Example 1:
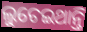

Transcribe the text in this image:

ଲୁଚେଇଥାନ୍ତି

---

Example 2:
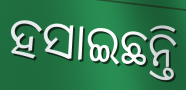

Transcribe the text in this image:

ହସାଇଛନ୍ତି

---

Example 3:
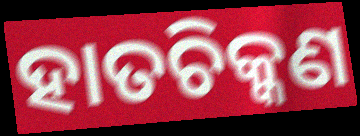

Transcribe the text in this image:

ହାତଚିକ୍କଣ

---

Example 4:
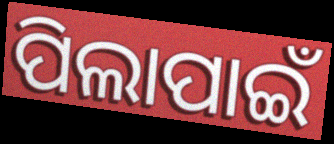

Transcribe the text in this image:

ପିଲାପାଇଁ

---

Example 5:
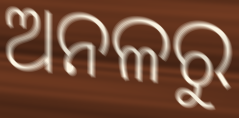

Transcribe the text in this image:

ଅନଳରୁ